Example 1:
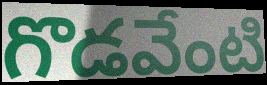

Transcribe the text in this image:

గొడవేంటి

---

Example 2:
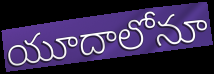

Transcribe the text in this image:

యూదాలోనూ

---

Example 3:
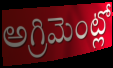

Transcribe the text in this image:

అగ్రిమెంట్లో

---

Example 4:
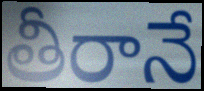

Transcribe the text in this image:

తీరానే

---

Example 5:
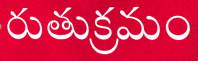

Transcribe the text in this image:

రుతుక్రమం